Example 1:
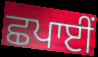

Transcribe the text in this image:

ਛਪਾਈਂ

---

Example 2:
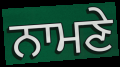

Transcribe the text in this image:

ਨਾਮਣੇ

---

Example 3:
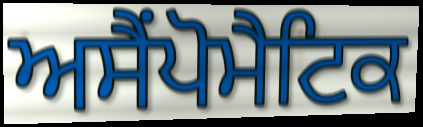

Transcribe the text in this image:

ਅਸੈਂਪੋਮੈਟਿਕ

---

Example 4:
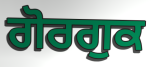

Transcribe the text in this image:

ਗੋਰਗੁਕ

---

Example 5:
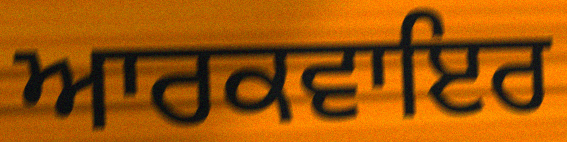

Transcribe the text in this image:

ਆਰਕਵਾਇਰ